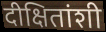
दीक्षितांशी